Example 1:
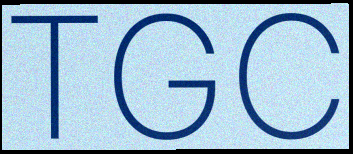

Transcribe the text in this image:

TGC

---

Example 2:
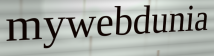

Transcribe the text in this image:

mywebdunia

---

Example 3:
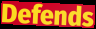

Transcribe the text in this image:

Defends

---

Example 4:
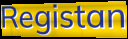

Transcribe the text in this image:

Registan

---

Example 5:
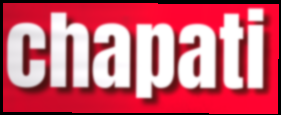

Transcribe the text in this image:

chapati